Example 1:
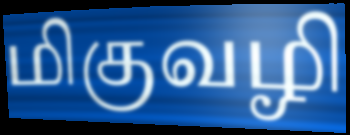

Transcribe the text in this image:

மிகுவழி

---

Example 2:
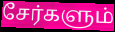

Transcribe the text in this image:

சேர்களும்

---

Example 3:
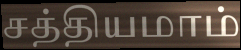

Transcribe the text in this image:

சத்தியமாம்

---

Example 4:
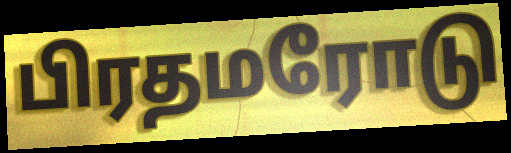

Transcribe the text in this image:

பிரதமரோடு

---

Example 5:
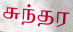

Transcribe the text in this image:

சுந்தர